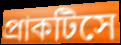
প্রাকটিসে